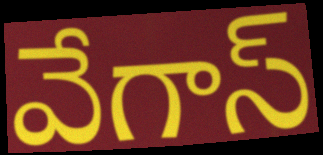
వేగాస్